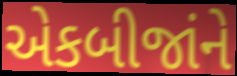
એકબીજાંને